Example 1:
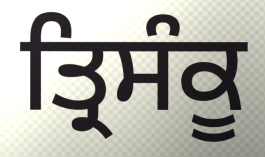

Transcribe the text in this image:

ਤ੍ਰਿਸੰਕੂ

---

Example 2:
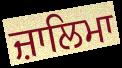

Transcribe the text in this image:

ਜ਼ਾਲਿਮਾ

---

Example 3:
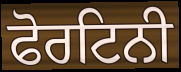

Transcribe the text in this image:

ਫੋਰਟਿਨੀ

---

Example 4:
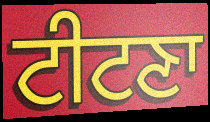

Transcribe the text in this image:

ਟੀਟਣਾ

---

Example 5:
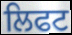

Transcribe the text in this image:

ਲਿਫਟ